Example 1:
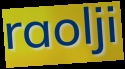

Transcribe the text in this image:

raolji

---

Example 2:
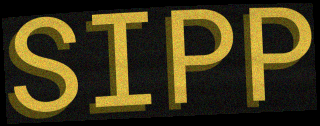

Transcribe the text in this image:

SIPP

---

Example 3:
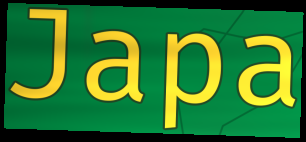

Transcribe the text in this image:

Japa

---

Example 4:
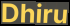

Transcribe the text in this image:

Dhiru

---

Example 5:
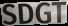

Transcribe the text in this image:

SDGT